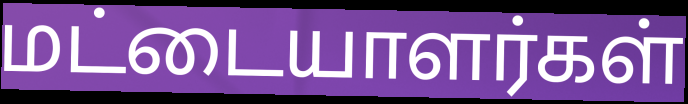
மட்டையாளர்கள்